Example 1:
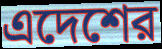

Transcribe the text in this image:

এদেশের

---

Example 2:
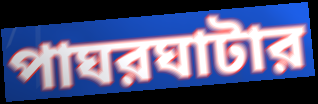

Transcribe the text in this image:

পাঘরঘাটার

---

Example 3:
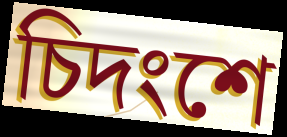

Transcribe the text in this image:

চিদংশে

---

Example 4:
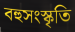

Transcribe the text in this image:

বহুসংস্কৃতি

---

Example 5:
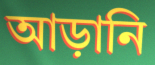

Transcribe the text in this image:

আড়ানি